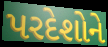
પરદેશોને